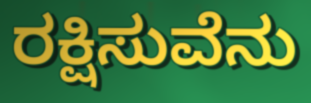
ರಕ್ಷಿಸುವೆನು